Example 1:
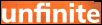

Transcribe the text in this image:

unfinite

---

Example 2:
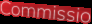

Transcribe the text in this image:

Commissio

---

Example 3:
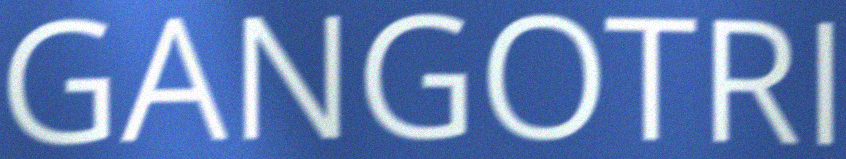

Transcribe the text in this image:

GANGOTRI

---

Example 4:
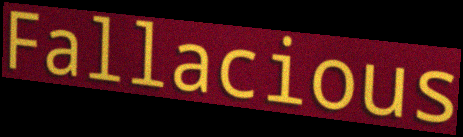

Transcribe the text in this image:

Fallacious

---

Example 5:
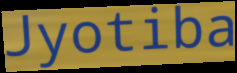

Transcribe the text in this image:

Jyotiba